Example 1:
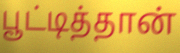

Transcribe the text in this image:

பூட்டித்தான்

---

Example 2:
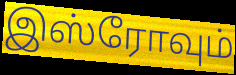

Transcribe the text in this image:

இஸ்ரோவும்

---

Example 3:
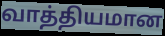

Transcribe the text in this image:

வாத்தியமான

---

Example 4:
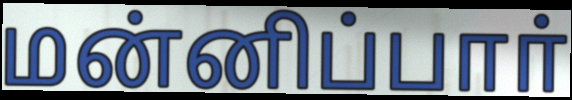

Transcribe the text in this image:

மன்னிப்பார்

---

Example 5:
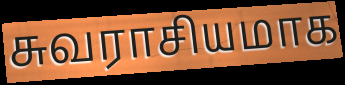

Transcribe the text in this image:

சுவராசியமாக